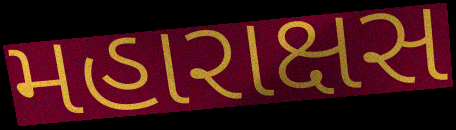
મહારાક્ષસ